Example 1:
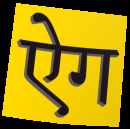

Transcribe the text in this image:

ऐग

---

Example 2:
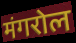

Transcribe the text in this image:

मंगरोल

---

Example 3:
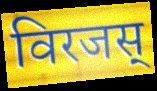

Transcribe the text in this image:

विरजस्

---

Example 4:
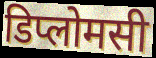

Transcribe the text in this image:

डिप्लोमसी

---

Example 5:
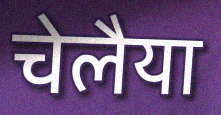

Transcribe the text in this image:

चेलैया